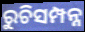
ରୁଚିସମ୍ପନ୍ନ